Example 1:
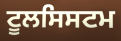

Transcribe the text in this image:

ਟੂਲਸਿਸਟਮ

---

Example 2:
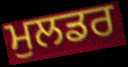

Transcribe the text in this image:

ਮੁਲਡਰ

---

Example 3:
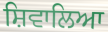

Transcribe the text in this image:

ਸ਼ਿਵਾਲਿਆ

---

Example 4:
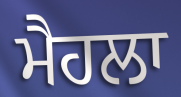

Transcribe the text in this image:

ਮੈਹਲਾ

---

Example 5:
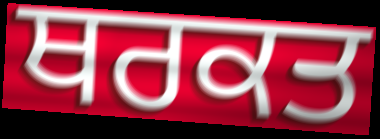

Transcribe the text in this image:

ਥਰਕਤ